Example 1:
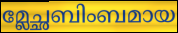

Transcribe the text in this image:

മ്ലേച്ഛബിംബമായ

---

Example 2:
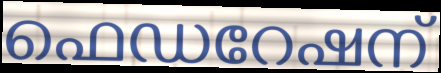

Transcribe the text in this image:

ഫെഡറേഷന്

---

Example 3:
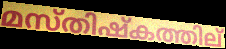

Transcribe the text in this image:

മസ്തിഷ്കത്തില്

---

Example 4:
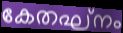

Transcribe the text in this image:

കേതഘ്നം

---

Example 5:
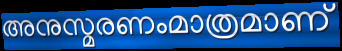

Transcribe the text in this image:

അനുസ്മരണംമാത്രമാണ്